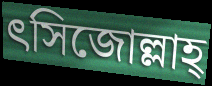
ৎসিজোল্লাহ্